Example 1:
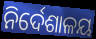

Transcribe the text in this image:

ନିର୍ଦେଶାଳୟ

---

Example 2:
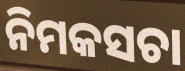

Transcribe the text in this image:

ନିମକସଚା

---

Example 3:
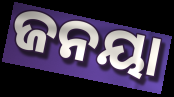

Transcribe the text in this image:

ଜନୟା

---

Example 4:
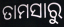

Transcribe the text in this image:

ତାମସାରୁ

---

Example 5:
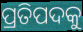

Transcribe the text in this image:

ପ୍ରତିପଦକୁ